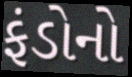
ફંડોનો